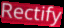
Rectify